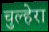
चुल्हेरा